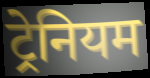
ट्रेनियम